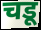
चडू